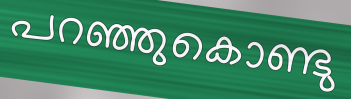
പറഞ്ഞുകൊണ്ടു